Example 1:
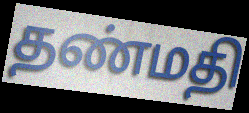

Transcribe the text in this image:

தண்மதி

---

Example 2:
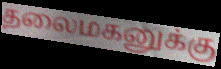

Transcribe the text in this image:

தலைமகனுக்கு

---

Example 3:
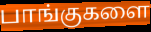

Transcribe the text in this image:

பாங்குகளை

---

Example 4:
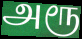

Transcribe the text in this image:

அரூ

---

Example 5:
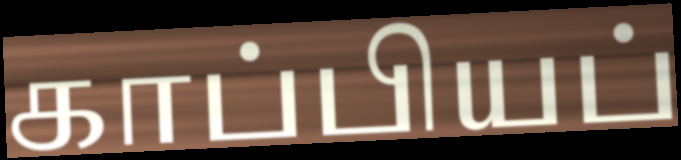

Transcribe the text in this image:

காப்பியப்